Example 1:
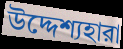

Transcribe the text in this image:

উদ্দেশ্যহারা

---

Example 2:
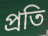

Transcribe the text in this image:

প্রতি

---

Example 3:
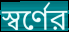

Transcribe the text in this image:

স্বর্ণের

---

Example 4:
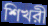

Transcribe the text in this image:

শিখরী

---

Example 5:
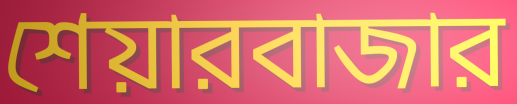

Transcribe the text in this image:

শেয়ারবাজার